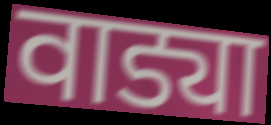
वाड्या